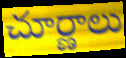
చూర్ణాలు